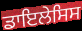
ਡਾਇਲੇਸਿਸ